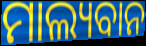
ମାଲ୍ୟବାନ